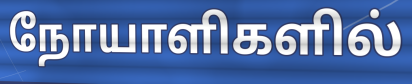
நோயாளிகளில்